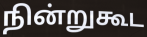
நின்றுகூட